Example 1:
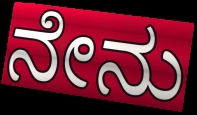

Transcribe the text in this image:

ನೇನು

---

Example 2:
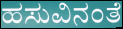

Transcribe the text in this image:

ಹಸುವಿನಂತೆ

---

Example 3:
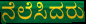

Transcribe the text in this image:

ನೆಲೆಸಿದರು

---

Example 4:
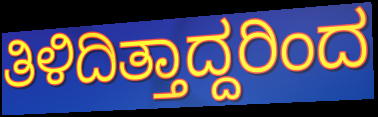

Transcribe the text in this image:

ತಿಳಿದಿತ್ತಾದ್ದರಿಂದ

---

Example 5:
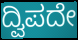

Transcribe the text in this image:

ದ್ವಿಪದೇ